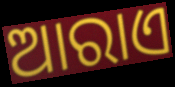
ଆରାଏ